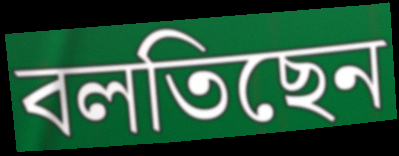
বলতিছেন